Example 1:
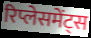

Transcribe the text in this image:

रिप्लेसमेंट्स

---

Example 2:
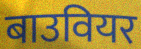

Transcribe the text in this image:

बाउवियर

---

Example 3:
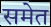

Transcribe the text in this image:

समेत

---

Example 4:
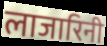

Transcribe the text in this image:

लाजारिनी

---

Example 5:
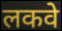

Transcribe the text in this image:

लकवे